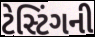
ટેસ્ટિંગની